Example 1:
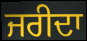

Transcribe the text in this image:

ਜਰੀਦਾ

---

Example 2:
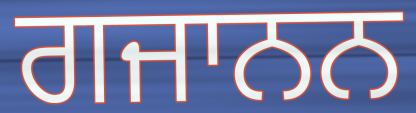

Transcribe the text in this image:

ਗਜਾਨਨ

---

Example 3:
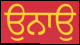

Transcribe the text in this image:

ਉਨਾਉ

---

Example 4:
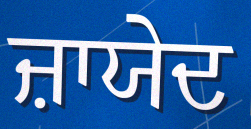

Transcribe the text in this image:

ਜ਼ਾਯੇਦ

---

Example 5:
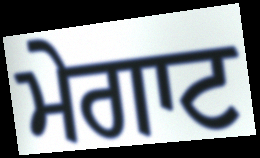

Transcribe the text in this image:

ਮੇਗਾਟ